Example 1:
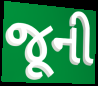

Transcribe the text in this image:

જૂની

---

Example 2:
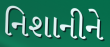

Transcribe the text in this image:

નિશાનીને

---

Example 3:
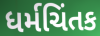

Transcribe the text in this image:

ધર્મચિંતક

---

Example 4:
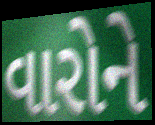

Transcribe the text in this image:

વારોને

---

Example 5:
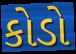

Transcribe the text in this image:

કોડો